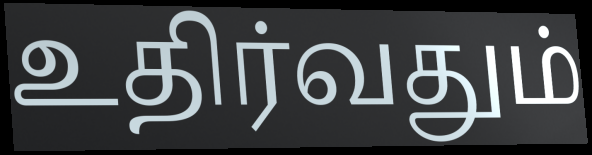
உதிர்வதும்